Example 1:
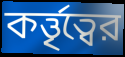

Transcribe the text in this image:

কর্ত্তৃত্বের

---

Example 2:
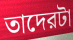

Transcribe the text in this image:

তাদেরটা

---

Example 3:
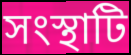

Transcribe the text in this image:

সংস্থাটি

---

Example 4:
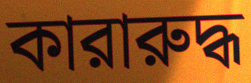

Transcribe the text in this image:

কারারুদ্ধ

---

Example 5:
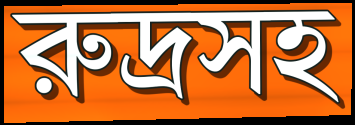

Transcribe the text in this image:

রুদ্রসহ